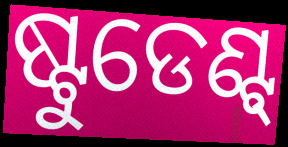
ଷ୍ଟୁଡେଣ୍ଟ୍